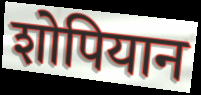
शोपियान